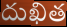
దుఖిత